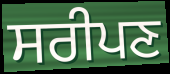
ਸਰੀਪਣ